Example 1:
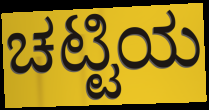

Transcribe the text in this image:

ಚಟ್ಟಿಯ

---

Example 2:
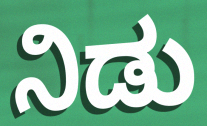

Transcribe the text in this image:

ನಿಡು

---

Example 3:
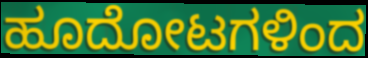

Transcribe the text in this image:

ಹೂದೋಟಗಳಿಂದ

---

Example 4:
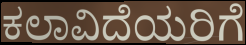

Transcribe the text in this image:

ಕಲಾವಿದೆಯರಿಗೆ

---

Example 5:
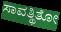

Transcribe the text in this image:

ಸಾವತ್ಥಿತೋ